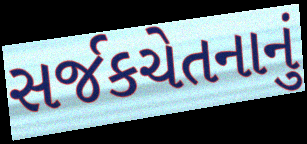
સર્જકચેતનાનું